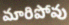
మారిపోవు